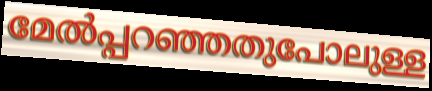
മേൽപ്പറഞ്ഞതുപോലുള്ള